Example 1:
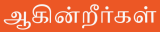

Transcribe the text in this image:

ஆகின்றீர்கள்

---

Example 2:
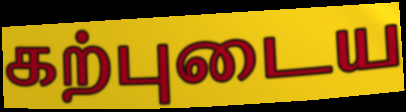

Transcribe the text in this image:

கற்புடைய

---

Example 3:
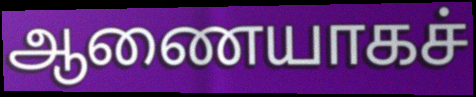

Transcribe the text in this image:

ஆணையாகச்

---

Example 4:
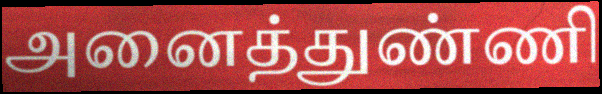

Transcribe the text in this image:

அனைத்துண்ணி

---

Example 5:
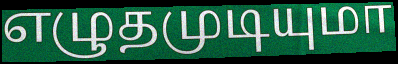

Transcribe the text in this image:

எழுதமுடியுமா